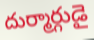
దుర్మార్గుడై